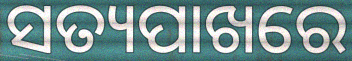
ସତ୍ୟପାଖରେ